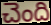
చెంది